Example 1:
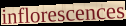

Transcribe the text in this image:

inflorescences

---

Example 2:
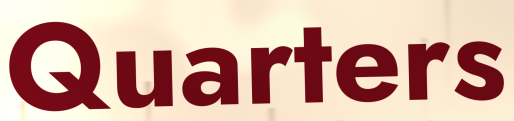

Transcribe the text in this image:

Quarters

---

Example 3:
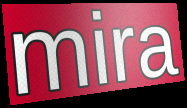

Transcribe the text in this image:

mira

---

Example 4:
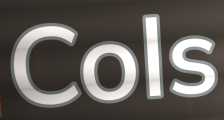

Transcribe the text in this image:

Cols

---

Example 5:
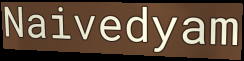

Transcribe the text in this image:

Naivedyam